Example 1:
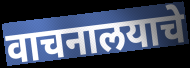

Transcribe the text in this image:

वाचनालयाचे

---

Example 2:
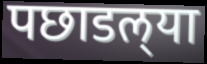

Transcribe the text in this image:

पछाडल्या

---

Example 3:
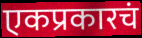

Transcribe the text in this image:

एकप्रकारचं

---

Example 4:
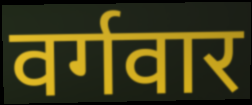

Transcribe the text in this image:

वर्गवार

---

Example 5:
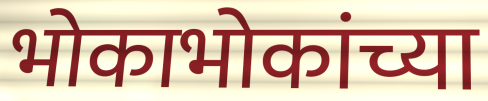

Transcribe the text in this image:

भोकाभोकांच्या